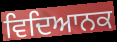
ਵਿਦਿਆਨਕ